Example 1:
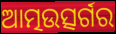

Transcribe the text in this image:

ଆତ୍ମଉତ୍ସର୍ଗର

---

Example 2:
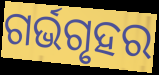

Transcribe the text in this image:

ଗର୍ଭଗୃହର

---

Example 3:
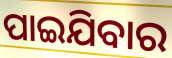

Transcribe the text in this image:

ପାଇଯିବାର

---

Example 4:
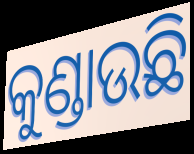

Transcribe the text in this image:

କୁଣ୍ଡାଉଛି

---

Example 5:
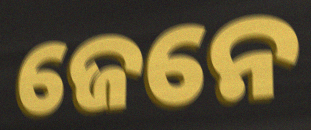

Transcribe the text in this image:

ଜେନେ